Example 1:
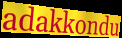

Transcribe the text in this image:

adakkondu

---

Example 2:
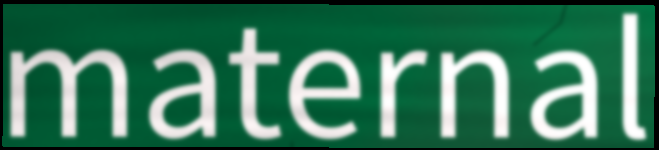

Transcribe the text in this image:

maternal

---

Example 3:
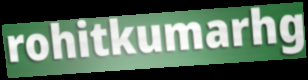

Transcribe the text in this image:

rohitkumarhg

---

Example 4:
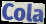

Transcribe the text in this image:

Cola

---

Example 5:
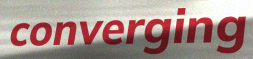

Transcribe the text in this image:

converging